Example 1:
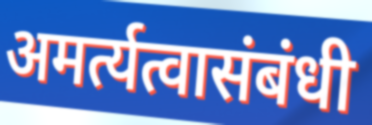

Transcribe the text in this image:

अमर्त्यत्वासंबंधी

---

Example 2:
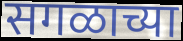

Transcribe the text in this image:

सगळाच्या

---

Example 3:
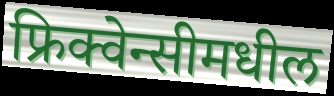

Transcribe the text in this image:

फ्रिक्वेन्सीमधील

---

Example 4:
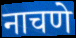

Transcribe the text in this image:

नाचणे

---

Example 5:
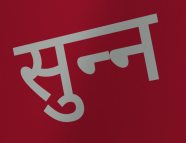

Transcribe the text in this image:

सुन्‍न